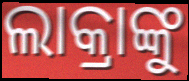
ଲାକ୍ରାଙ୍କୁ